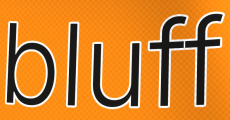
bluff